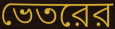
ভেতরের